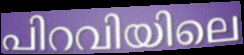
പിറവിയിലെ